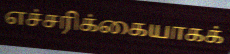
எச்சரிக்கையாகக்